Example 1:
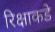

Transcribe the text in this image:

रिक्षाकडे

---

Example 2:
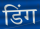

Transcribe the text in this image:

डिंग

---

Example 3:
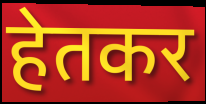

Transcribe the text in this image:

हेतकर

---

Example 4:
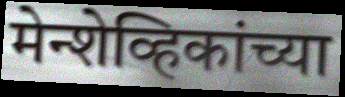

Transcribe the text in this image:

मेन्शेव्हिकांच्या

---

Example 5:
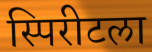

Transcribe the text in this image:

स्पिरीटला